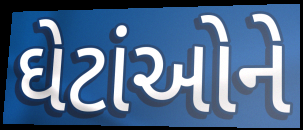
ઘેટાંઓને